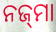
ନଜ୍‌ମା